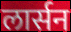
लार्सन